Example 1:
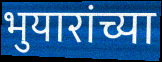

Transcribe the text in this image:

भुयारांच्या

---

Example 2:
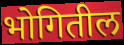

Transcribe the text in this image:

भोगितील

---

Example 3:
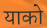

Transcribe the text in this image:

याको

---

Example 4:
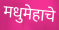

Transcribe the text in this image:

मधुमेहाचे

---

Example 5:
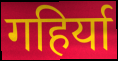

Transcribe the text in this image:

गहिर्या